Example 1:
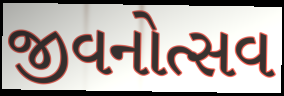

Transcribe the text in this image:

જીવનોત્સવ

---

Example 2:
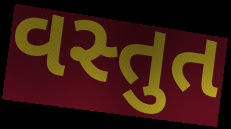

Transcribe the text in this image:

વસ્તુત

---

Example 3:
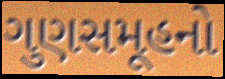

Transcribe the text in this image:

ગુણસમૂહનો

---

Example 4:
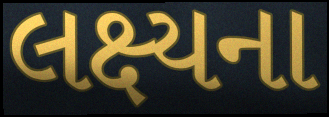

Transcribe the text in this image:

લક્ષ્યના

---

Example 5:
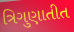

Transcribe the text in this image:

ત્રિગુણાતીત